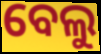
ବେଲୁ